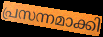
പ്രസന്നമാക്കി